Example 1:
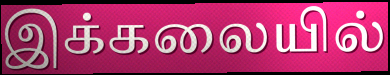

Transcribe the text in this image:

இக்கலையில்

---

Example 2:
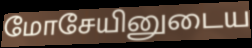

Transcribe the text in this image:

மோசேயினுடைய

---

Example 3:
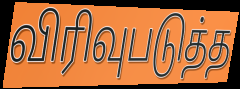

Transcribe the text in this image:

விரிவுபடுத்த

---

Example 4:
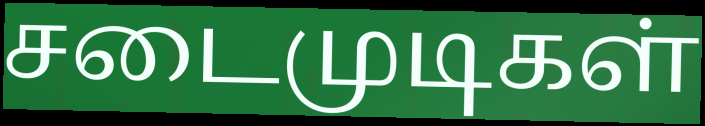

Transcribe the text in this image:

சடைமுடிகள்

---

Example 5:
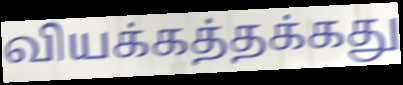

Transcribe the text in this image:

வியக்கத்தக்கது